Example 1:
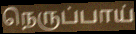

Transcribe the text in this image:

நெருப்பாய்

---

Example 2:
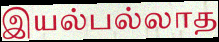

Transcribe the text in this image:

இயல்பல்லாத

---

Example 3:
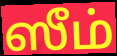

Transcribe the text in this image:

ஸீம்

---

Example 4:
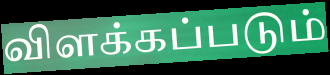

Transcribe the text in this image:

விளக்கப்படும்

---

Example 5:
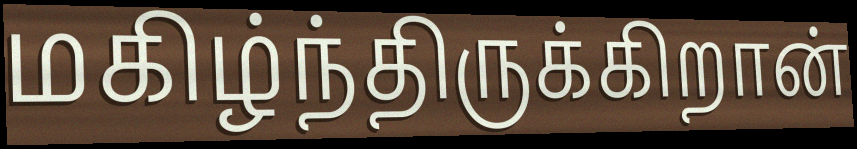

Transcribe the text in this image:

மகிழ்ந்திருக்கிறான்